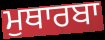
ਮੁਥਾਰਬਾ